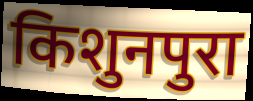
किशुनपुरा